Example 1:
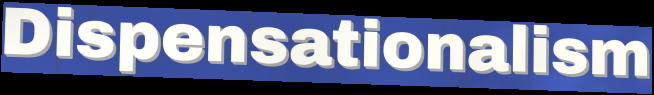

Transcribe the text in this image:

Dispensationalism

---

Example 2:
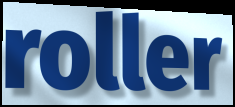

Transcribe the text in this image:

roller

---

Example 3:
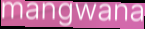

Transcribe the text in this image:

mangwana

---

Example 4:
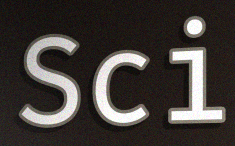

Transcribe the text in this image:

Sci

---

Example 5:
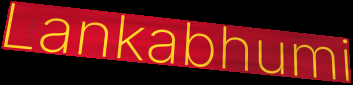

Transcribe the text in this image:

Lankabhumi